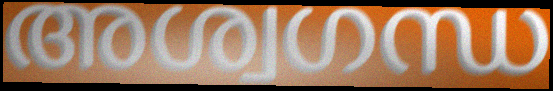
അശ്വഗന്ധ